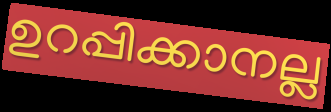
ഉറപ്പിക്കാനല്ല